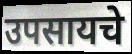
उपसायचे